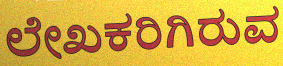
ಲೇಖಕರಿಗಿರುವ